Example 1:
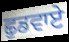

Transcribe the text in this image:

ਛੁਡਵਾਏ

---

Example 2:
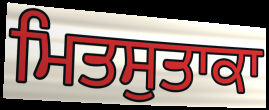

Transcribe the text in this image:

ਮਿਤਸੁਤਾਕਾ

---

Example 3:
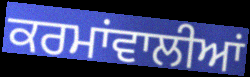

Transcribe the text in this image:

ਕਰਮਾਂਵਾਲੀਆਂ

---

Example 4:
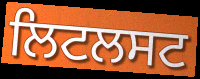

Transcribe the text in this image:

ਲਿਟਲਸਟ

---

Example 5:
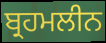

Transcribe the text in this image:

ਬ੍ਰਹਮਲੀਨ